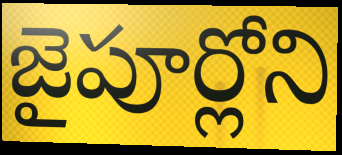
జైపూర్లోని